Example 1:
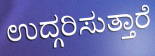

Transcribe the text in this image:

ಉದ್ಗರಿಸುತ್ತಾರೆ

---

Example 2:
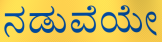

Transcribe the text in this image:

ನಡುವೆಯೇ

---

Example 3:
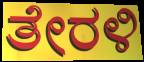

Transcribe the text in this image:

ತೇರಳಿ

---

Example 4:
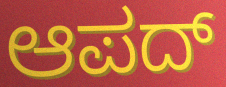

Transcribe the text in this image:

ಆಪದ್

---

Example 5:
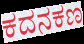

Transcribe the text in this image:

ಕದನಕಣ